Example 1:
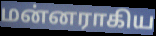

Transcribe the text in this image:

மன்னராகிய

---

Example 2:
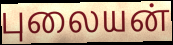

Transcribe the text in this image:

புலையன்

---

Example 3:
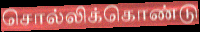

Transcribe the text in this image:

சொல்லிக்கொண்டு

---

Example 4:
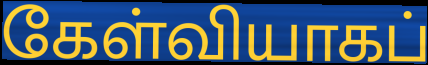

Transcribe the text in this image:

கேள்வியாகப்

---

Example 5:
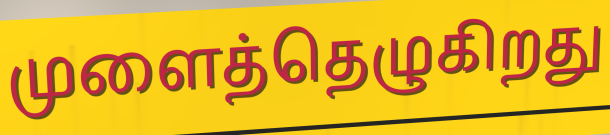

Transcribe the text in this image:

முளைத்தெழுகிறது